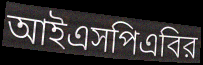
আইএসপিএবির